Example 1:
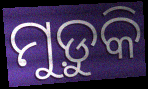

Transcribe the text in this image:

ମୁଡ଼ୁକି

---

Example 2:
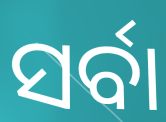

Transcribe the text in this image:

ସର୍ବା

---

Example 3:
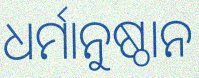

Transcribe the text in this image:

ଧର୍ମାନୁଷ୍ଠାନ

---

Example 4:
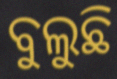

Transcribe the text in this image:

ବୁଲୁଛି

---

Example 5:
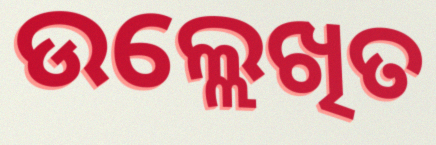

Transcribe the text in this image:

ଉଲ୍ଲେଖିତ